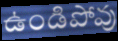
ఉండిపోవు